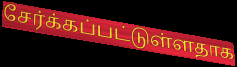
சேர்க்கப்பட்டுள்ளதாக